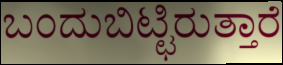
ಬಂದುಬಿಟ್ಟಿರುತ್ತಾರೆ